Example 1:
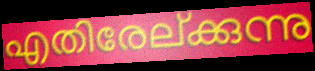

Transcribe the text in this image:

എതിരേല്ക്കുന്നു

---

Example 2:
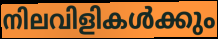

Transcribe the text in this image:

നിലവിളികൾക്കും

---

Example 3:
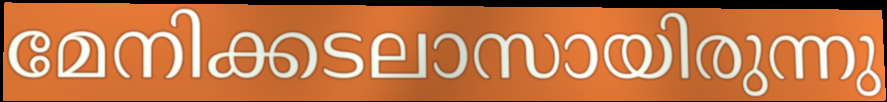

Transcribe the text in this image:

മേനിക്കടലാസായിരുന്നു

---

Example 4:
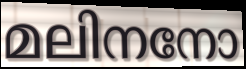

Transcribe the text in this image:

മലിനനോ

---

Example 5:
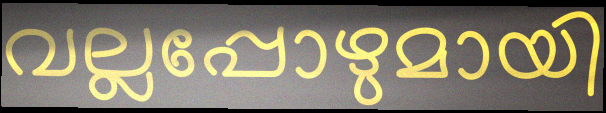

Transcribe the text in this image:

വല്ലപ്പോഴുമായി